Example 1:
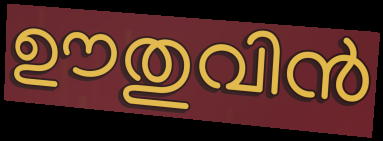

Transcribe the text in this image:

ഊതുവിൻ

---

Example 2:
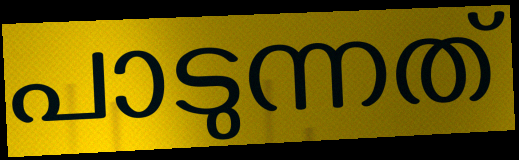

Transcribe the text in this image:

പാടുന്നത്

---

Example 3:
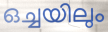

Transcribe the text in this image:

ഒച്ചയിലും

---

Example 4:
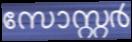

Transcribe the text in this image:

സോസ്റ്റർ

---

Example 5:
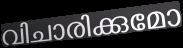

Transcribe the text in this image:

വിചാരിക്കുമോ